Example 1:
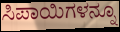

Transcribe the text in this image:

ಸಿಪಾಯಿಗಳನ್ನೂ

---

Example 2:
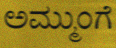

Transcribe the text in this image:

ಅಮ್ಮುಂಗೆ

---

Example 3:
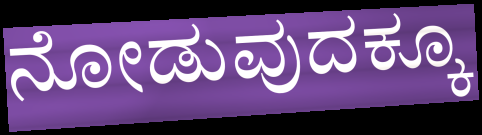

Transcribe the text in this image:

ನೋಡುವುದಕ್ಕೂ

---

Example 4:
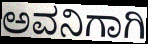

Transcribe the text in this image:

ಅವನಿಗಾಗಿ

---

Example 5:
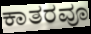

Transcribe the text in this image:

ಕಾತರವೂ